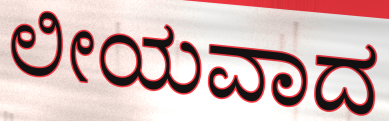
ಲೀಯವಾದ